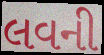
લવની